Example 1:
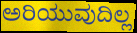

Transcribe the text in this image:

ಅರಿಯುವುದಿಲ್ಲ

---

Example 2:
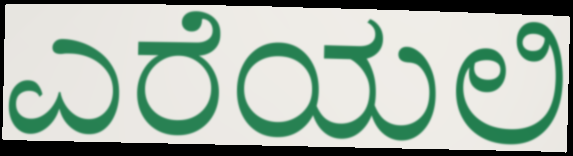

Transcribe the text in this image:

ಎರೆಯಲಿ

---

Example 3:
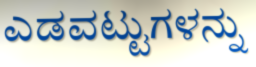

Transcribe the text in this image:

ಎಡವಟ್ಟುಗಳನ್ನು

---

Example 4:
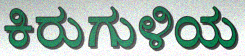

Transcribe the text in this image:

ಕಿರುಗುಳಿಯ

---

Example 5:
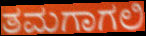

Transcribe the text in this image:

ತಮಗಾಗಲಿ